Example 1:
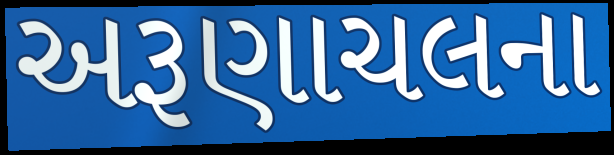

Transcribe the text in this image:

અરૂણાચલના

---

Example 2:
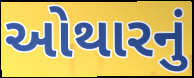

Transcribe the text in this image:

ઓથારનું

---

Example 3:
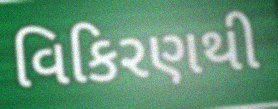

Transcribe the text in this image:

વિકિરણથી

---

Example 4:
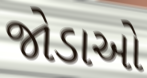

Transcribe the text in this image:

જોડાઓ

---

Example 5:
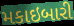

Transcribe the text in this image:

મકાઇબારી